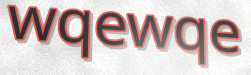
wqewqe